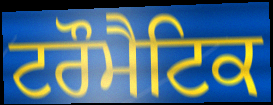
ਟਰੌਮੈਟਿਕ